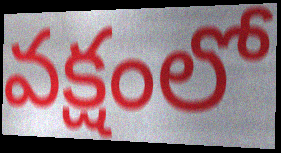
వక్షంలో